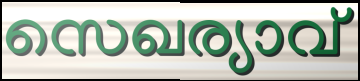
സെഖര്യാവ്